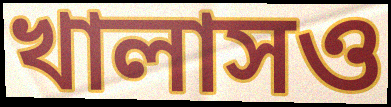
খালাসও